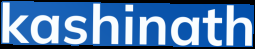
kashinath